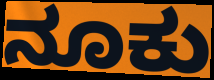
ನೂಕು